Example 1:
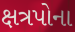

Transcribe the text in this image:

ક્ષત્રપોના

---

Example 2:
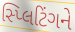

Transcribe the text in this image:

સ્પ્લિટિંગને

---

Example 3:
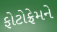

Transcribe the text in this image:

ફોટોફ્રેમને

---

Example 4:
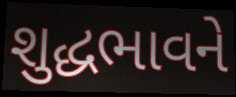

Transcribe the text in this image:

શુદ્ધભાવને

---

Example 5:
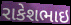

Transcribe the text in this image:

રાકેશભાઇ